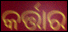
କର୍ତ୍ତାର